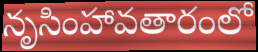
నృసింహావతారంలో